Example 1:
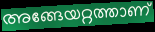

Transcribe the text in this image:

അങ്ങേയറ്റത്താണ്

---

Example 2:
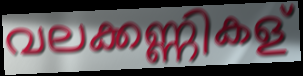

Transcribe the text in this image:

വലക്കണ്ണികള്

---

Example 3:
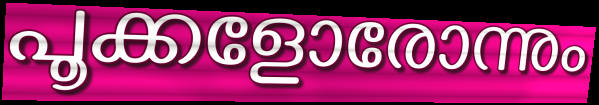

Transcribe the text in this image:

പൂക്കളോരോന്നും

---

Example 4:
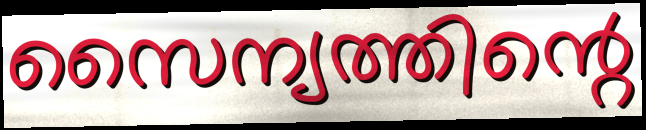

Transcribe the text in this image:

സൈന്യത്തിന്റെ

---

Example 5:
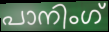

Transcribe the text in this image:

പാനിംഗ്